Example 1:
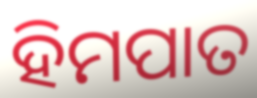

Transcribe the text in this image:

ହିମପାତ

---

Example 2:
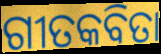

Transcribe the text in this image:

ଗୀତକବିତା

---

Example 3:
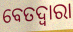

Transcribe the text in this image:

ବେତଦ୍ୱାରା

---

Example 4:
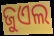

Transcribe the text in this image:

ଜୁଏଲ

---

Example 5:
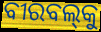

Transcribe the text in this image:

ବୀରବଲ୍‌କୁ